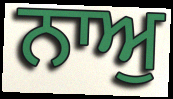
ਨਾਅੁ